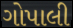
ગોપાલી